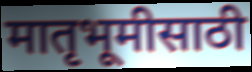
मातृभूमीसाठी